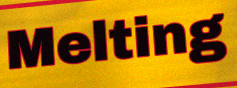
Melting